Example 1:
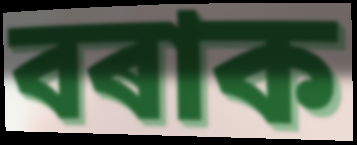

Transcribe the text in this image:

বৰাক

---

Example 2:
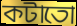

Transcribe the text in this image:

কটাতো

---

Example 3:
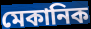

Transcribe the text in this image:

মেকানিক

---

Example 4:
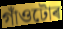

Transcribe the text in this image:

গাঁওটোৰ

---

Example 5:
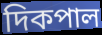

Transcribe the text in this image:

দিকপাল